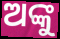
ଅଙ୍କୁ